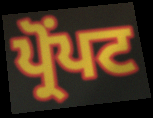
ਪ੍ਰੋਂਪਟ